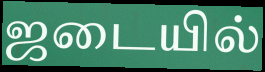
ஜடையில்